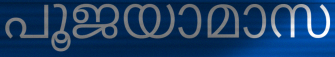
പൂജയാമാസ